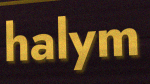
halym